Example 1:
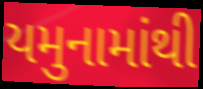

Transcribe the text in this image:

યમુનામાંથી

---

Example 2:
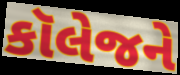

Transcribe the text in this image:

કૉલેજને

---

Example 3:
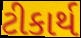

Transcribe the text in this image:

ટીકાર્થ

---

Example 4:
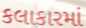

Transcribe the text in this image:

કલાકારમાં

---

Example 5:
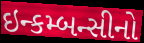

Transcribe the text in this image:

ઇન્કમ્બન્સીનો